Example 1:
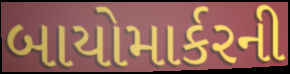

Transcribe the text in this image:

બાયોમાર્કરની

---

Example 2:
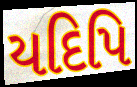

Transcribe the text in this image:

યદિપિ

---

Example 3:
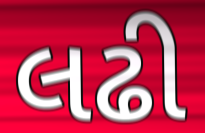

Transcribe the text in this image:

લઢી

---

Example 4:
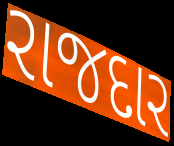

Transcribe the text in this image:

રાજદાર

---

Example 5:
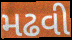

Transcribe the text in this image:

મઢવી